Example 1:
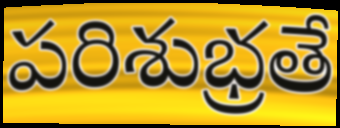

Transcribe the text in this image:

పరిశుభ్రతే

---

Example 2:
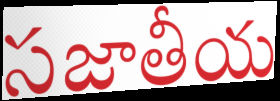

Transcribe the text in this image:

సజాతీయ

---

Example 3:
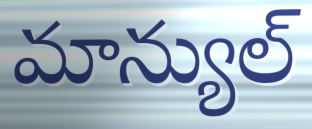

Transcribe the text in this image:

మాన్యుల్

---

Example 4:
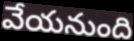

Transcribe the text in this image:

వేయనుంది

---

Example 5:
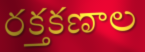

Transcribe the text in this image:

రక్తకణాల